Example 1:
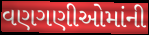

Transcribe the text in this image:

વણગણીઓમાંની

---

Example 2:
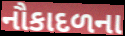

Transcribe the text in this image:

નૌકાદળના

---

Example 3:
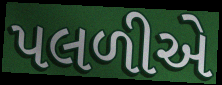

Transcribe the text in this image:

પલળીએ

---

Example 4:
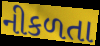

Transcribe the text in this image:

નીકળતા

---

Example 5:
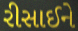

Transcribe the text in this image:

રીસાઈને